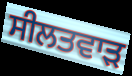
ਸੀਲਤਵਾੜ